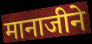
मानाजीने